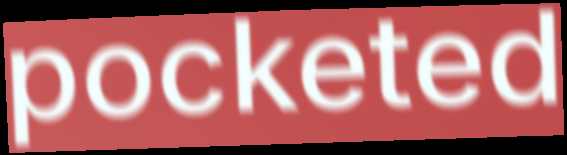
pocketed